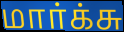
மார்க்சு